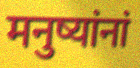
मनुष्यांनां